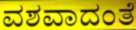
ವಶವಾದಂತೆ